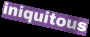
iniquitous